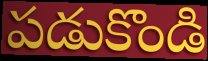
పడుకొండి